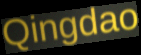
Qingdao